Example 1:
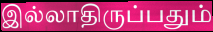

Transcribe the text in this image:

இல்லாதிருப்பதும்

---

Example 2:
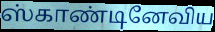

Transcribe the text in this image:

ஸ்காண்டினேவிய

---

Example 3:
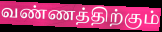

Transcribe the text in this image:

வண்ணத்திற்கும்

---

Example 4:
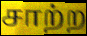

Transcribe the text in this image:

சாற்ற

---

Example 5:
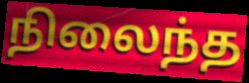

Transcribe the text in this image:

நிலைந்த